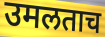
उमलताच